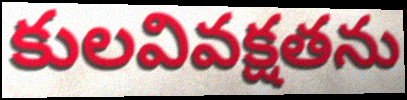
కులవివక్షతను